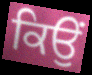
ਕਿਉੰ